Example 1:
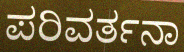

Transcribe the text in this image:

ಪರಿವರ್ತನಾ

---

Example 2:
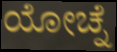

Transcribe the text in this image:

ಯೋಚ್ನೆ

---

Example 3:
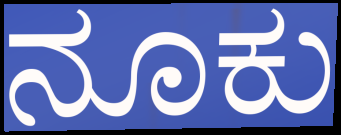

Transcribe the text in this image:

ನೂಕು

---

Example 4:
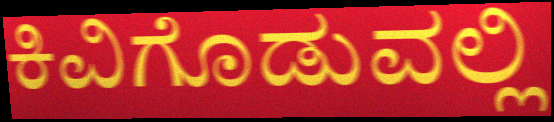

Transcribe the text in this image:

ಕಿವಿಗೊಡುವಲ್ಲಿ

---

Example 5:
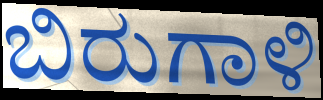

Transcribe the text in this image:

ಬಿರುಗಾಳಿ